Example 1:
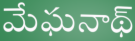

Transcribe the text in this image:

మేఘనాథ్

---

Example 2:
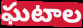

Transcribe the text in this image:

ఘటాల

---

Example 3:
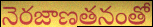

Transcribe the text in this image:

నెరజాణతనంతో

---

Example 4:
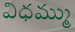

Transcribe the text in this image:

విధమ్ము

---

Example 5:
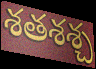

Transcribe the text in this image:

శతశశ్చ